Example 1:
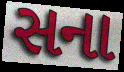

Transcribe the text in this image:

સના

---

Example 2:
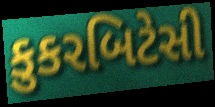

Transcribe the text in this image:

કુકરબિટેસી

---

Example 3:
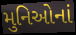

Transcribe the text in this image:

મુનિઓનાં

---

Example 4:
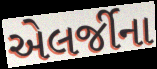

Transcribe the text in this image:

એલર્જીના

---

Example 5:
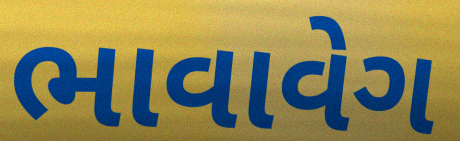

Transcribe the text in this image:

ભાવાવેગ